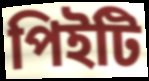
পিইটি